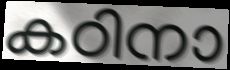
കഠിനാ